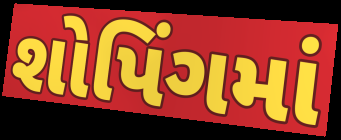
શોપિંગમાં